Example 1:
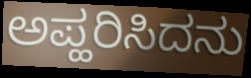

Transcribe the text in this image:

ಅಪ್ಹರಿಸಿದನು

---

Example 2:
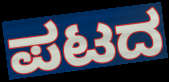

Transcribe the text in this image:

ಪಟದ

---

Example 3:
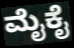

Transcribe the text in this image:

ಮೈಕೈ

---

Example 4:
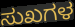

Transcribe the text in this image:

ಸುಖಗಳ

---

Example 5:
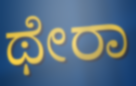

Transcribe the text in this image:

ಥೇರಾ